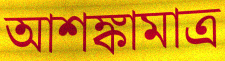
আশঙ্কামাত্র